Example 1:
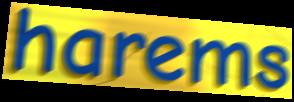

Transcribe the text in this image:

harems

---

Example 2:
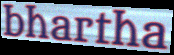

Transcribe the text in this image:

bhartha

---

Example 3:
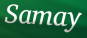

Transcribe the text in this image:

Samay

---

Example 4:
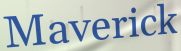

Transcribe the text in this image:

Maverick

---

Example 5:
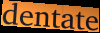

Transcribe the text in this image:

dentate